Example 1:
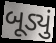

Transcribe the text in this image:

બૂડ્યું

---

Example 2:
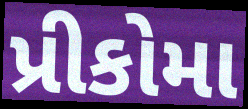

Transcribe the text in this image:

પ્રીકોમા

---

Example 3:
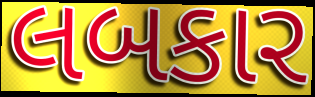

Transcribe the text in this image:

લબકાર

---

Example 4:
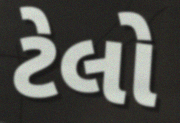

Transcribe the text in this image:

ટેલો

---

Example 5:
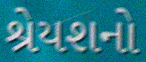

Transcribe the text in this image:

શ્રેયશનો